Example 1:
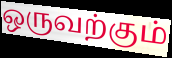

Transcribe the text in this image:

ஒருவற்கும்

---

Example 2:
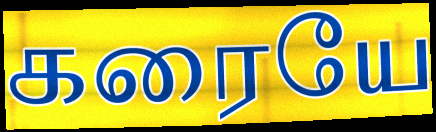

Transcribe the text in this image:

கரையே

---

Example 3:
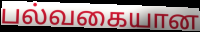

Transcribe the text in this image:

பல்வகையான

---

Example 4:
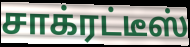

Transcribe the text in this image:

சாக்ரட்டீஸ்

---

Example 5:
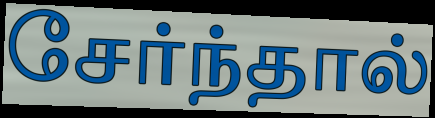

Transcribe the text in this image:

சேர்ந்தால்